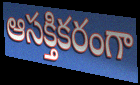
ఆసక్తికరంగా